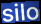
silo